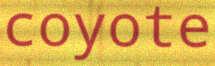
coyote